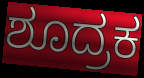
ಶೂದ್ರಕ